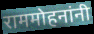
राममोहनांनी